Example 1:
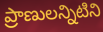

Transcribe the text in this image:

ప్రాణులన్నిటిని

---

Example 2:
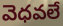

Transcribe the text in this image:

వెధవలే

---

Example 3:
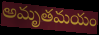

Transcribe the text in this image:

అమృతమయం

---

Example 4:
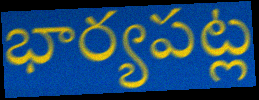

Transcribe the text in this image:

భార్యపట్ల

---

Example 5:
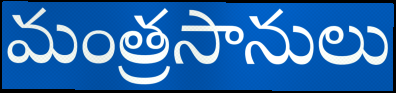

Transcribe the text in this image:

మంత్రసానులు